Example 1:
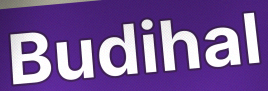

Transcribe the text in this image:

Budihal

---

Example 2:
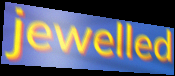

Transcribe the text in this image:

jewelled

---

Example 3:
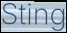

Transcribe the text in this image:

Sting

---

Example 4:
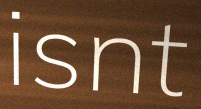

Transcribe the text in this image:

isnt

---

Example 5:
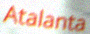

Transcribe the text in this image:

Atalanta